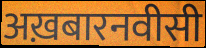
अख़बारनवीसी